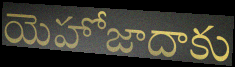
యెహోజాదాకు